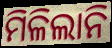
ମିଳିଲାନି